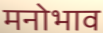
मनोभाव